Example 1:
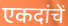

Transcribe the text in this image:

एकदांचें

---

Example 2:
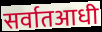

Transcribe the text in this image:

सर्वातआधी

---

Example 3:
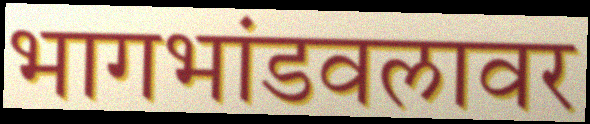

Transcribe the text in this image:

भागभांडवलावर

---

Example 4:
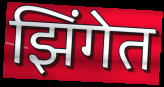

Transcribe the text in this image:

झिंगेत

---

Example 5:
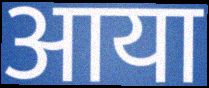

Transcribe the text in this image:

आया